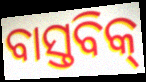
ବାସ୍ତବିକ୍